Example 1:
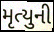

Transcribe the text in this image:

મૃત્યુની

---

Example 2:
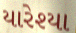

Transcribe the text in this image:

યારેશ્યા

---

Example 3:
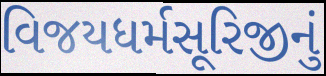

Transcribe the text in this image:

વિજયધર્મસૂરિજીનું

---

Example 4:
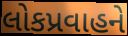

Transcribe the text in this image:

લોકપ્રવાહને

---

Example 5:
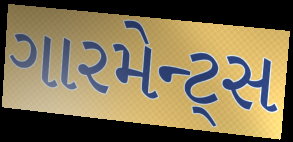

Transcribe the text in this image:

ગારમેન્ટ્સ